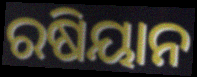
ରଷିୟାନ